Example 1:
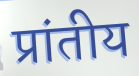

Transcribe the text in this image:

प्रांतीय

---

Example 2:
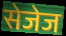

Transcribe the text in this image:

सेजेज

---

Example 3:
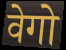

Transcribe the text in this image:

वेगो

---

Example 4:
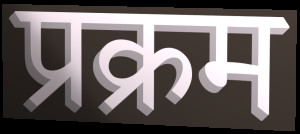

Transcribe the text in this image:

प्रक्रम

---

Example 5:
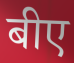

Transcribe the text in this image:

बीए